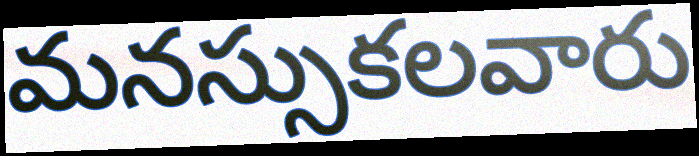
మనస్సుకలవారు